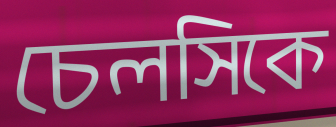
চেলসিকে